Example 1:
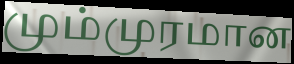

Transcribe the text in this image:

மும்முரமான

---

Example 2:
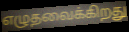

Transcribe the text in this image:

எழுதவைக்கிறது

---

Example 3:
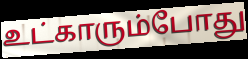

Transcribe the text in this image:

உட்காரும்போது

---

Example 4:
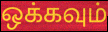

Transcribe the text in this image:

ஒக்கவும்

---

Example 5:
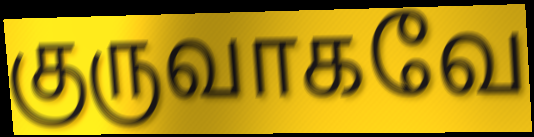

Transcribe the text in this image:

குருவாகவே